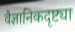
वैज्ञानिकदृष्ट्या